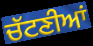
ਚੱਟਣੀਆਂ